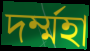
দৰ্ম্মহা